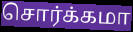
சொர்க்கமா